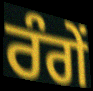
ਰੰਗੇਂ